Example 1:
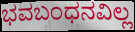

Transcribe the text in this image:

ಭವಬಂಧನವಿಲ್ಲ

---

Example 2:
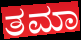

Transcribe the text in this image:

ತಮಾ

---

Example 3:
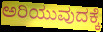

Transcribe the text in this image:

ಅರಿಯುವುದಕ್ಕೆ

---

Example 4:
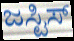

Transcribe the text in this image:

ಜಸ್ಟಿಸ್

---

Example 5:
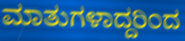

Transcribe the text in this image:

ಮಾತುಗಳಾದ್ದರಿಂದ